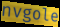
nvgole